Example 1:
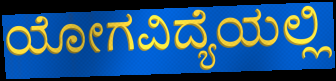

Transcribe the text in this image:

ಯೋಗವಿದ್ಯೆಯಲ್ಲಿ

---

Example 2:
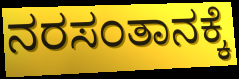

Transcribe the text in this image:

ನರಸಂತಾನಕ್ಕೆ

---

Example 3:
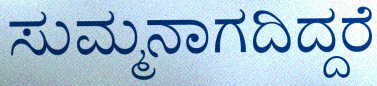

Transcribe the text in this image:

ಸುಮ್ಮನಾಗದಿದ್ದರೆ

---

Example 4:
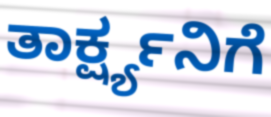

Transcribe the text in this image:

ತಾರ್ಕ್ಷ್ಯನಿಗೆ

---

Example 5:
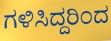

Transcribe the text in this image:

ಗಳಿಸಿದ್ದರಿಂದ